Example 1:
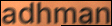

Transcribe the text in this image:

adhman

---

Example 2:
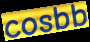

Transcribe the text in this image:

cosbb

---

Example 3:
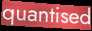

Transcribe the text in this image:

quantised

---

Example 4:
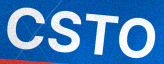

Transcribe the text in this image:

CSTO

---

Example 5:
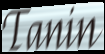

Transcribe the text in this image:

Tanin